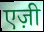
एज़ी